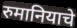
रुमानियाचे